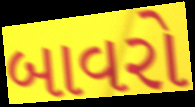
બાવરો